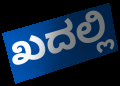
ಖದಲ್ಲಿ